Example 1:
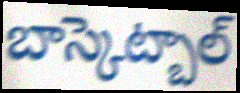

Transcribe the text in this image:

బాస్కెట్బాల్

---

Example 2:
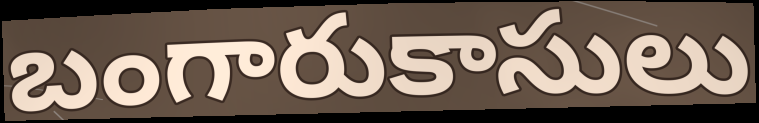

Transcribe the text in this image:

బంగారుకాసులు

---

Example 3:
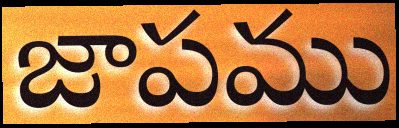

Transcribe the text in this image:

జాపము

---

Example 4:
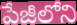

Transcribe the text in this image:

పేజీలోని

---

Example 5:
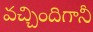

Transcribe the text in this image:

వచ్చిందిగానీ